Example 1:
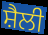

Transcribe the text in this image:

ਸ਼ੈਲੀ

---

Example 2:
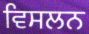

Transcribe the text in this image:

ਵਿਸਲਨ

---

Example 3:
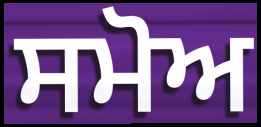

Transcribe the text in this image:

ਸਮੋਅ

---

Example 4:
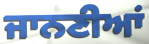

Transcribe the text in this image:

ਜਾਨਣੀਆਂ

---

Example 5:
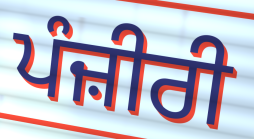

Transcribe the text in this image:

ਪੰਜ਼ੀਰੀ